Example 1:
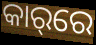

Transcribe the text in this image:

କାର୍‌ରେ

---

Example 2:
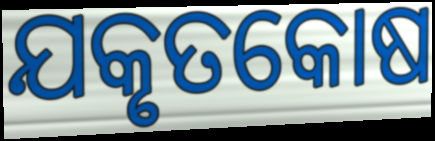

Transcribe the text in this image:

ଯକୃତକୋଷ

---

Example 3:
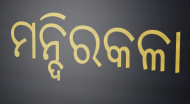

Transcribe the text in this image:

ମନ୍ଦିରକଳା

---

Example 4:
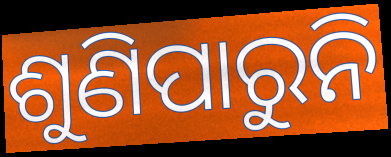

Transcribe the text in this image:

ଶୁଣିପାରୁନି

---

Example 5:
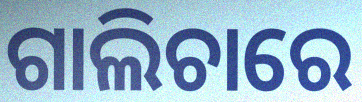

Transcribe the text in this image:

ଗାଲିଚାରେ